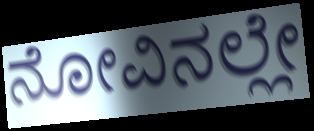
ನೋವಿನಲ್ಲೇ